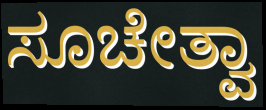
ಸೂಚೇತ್ವಾ